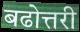
बढोत्तरी